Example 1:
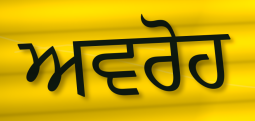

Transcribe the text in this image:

ਅਵਰੋਹ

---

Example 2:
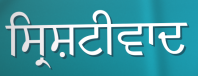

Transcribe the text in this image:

ਸ੍ਰਿਸ਼ਟੀਵਾਦ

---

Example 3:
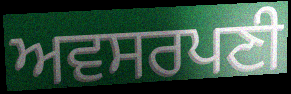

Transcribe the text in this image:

ਅਵਸਰਪਣੀ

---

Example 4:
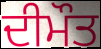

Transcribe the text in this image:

ਦੀਮੌਤ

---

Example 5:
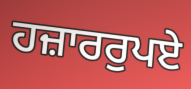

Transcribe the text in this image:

ਹਜ਼ਾਰਰੁਪਏ